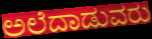
ಅಲೆದಾಡುವರು